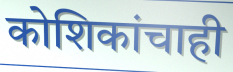
कोशिकांचाही